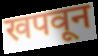
खपवून